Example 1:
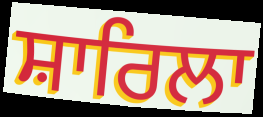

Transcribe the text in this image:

ਸ਼ਾਰਿਲਾ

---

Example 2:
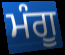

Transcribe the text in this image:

ਮੰਗੂ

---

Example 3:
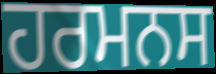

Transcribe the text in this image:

ਹਰਮਨਸ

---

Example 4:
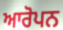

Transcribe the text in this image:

ਆਰੋਪਨ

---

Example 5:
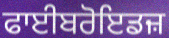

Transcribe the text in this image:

ਫਾਈਬਰੋਇਡਜ਼